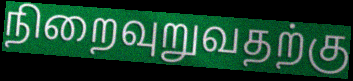
நிறைவுறுவதற்கு